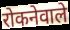
रोकनेवाले